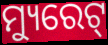
ମ୍ୟୁରେଟ୍